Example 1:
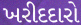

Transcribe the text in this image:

ખરીદદારો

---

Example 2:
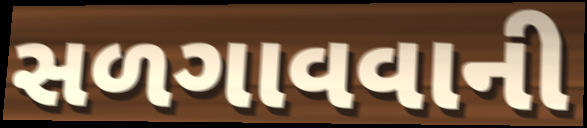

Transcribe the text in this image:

સળગાવવાની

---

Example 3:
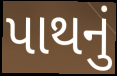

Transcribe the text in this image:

પાથનું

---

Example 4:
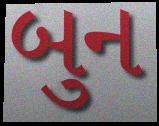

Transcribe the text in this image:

બુન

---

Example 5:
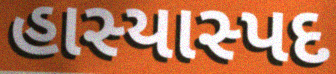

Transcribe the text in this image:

હાસ્યાસ્પદ